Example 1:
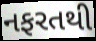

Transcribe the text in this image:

નફરતથી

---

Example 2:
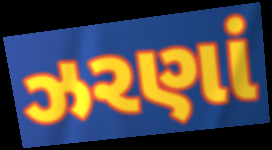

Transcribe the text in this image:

ઝરણાં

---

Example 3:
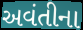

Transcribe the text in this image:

અવંતીના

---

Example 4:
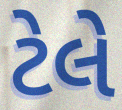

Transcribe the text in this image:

ટેલે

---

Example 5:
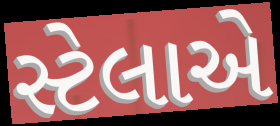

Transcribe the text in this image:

સ્ટેલાએ